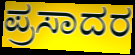
ಪ್ರಸಾದರ